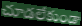
చూడలేకుండా